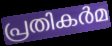
പ്രതികർമ